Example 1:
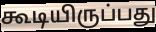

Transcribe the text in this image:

கூடியிருப்பது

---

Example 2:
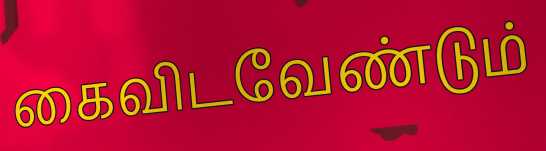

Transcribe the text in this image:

கைவிடவேண்டும்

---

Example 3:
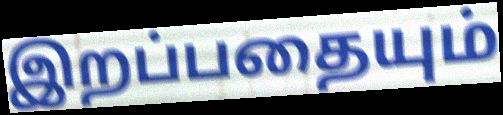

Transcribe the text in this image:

இறப்பதையும்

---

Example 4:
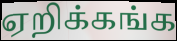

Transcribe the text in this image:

ஏறிக்கங்க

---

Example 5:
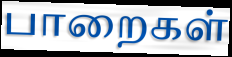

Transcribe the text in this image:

பாறைகள்